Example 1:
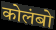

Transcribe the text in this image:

कोलंबो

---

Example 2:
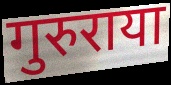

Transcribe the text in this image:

गुरुराया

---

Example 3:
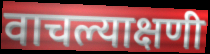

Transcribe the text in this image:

वाचल्याक्षणी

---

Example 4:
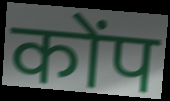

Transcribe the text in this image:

कोंप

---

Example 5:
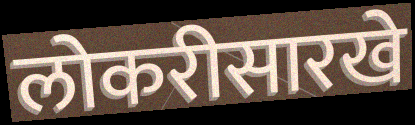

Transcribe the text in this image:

लोकरीसारखे